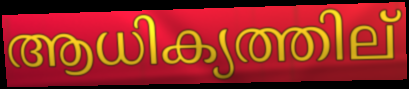
ആധിക്യത്തില്